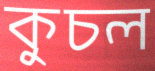
কুচল